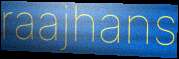
raajhans